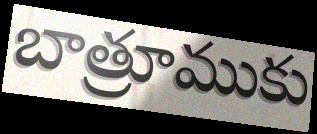
బాత్రూముకు